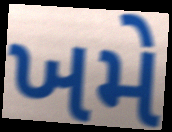
ખમે